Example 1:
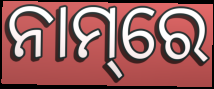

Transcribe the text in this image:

ନାମ୍‌ରେ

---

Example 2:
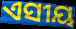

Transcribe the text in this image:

ଏସୀୟ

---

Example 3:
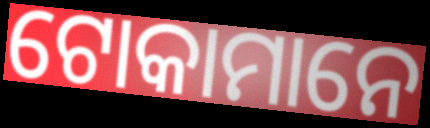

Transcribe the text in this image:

ଟୋକାମାନେ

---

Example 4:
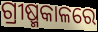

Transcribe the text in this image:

ଗ୍ରୀଷ୍ମକାଳରେ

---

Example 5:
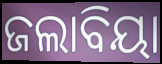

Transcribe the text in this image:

ଜଲାବିୟା